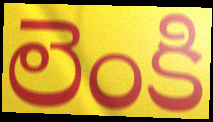
లెంకి